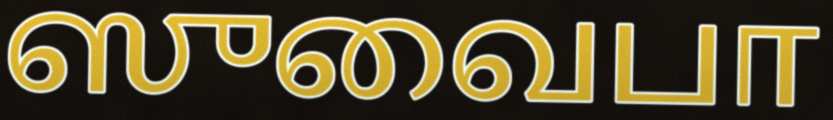
ஸுவைபா